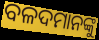
ବଳଦମାନଙ୍କୁ